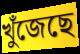
খুঁজেছে